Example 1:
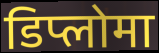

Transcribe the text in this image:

डिप्लोमा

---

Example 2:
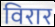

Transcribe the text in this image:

विरार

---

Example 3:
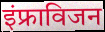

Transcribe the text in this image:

इंफ्राविजन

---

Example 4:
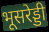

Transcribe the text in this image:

भूसरेड्डी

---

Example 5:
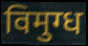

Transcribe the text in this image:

विमुग्ध